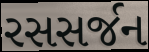
રસસર્જન